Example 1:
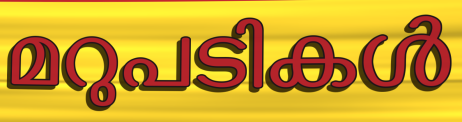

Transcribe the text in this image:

മറുപടികൾ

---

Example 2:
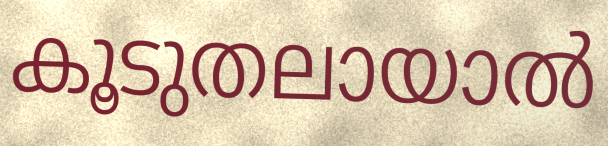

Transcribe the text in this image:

കൂടുതലായാൽ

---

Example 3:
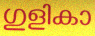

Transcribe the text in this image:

ഗുളികാ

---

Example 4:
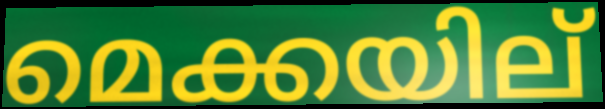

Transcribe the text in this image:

മെക്കയില്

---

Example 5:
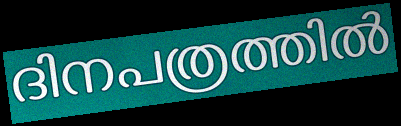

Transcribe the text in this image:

ദിനപത്രത്തിൽ